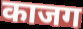
काजग